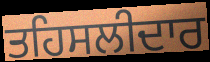
ਤਹਿਸਲੀਦਾਰ